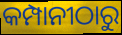
କମ୍ପାନୀଠାରୁ